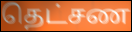
தெட்சண